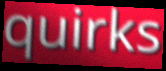
quirks